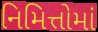
નિમિત્તોમાં